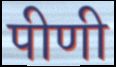
पीणी